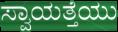
ಸ್ವಾಯತ್ತೆಯು